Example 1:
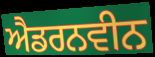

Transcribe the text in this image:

ਐਡਰਨਵੀਨ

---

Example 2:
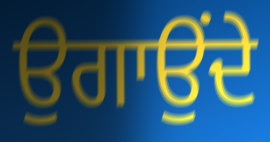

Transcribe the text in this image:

ਉਗਾਉਂਦੇ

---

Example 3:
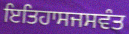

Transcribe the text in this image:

ਇਤਿਹਾਸਜਸਵੰਤ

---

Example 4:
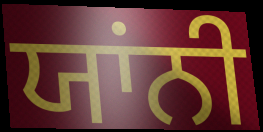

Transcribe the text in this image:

ਯਾਂਨੀ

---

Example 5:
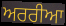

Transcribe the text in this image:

ਅਰਰੀਆ